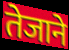
तेजाने